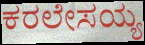
ಕರಲೇಸಯ್ಯ